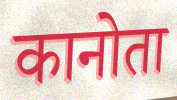
कानोता